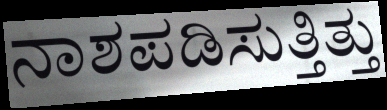
ನಾಶಪಡಿಸುತ್ತಿತ್ತು